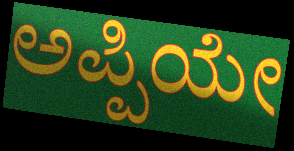
ಅಪ್ಪಿಯೇ